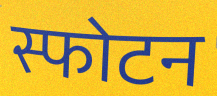
स्फोटन